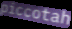
piccotah